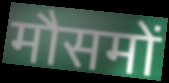
मौसमों